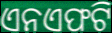
ଏନଏଫଟି